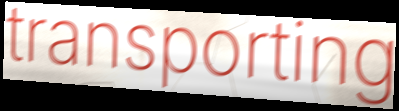
transporting